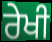
ਰੇਖੀ